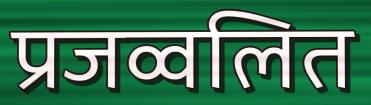
प्रजव्वलित